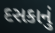
દસકાનું